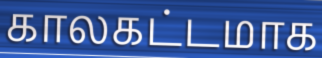
காலகட்டமாக